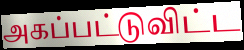
அகப்பட்டுவிட்ட